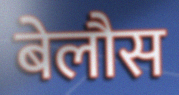
बेलौस